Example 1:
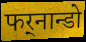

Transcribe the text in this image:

फर्नान्डो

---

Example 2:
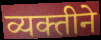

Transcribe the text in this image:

व्यक्तीने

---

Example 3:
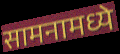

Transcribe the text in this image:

सामनामध्ये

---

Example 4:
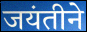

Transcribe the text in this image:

जयंतीने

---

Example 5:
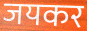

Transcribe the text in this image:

जयकर